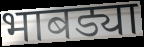
भाबड्या